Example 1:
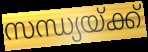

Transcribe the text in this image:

സന്ധ്യയ്ക്ക്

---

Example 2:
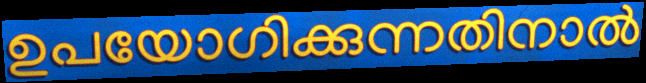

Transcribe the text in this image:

ഉപയോഗിക്കുന്നതിനാൽ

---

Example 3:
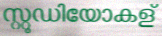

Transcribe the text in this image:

സ്റ്റുഡിയോകള്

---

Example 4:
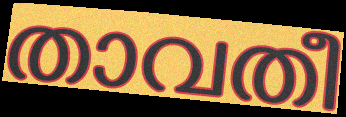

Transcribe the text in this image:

താവതീ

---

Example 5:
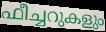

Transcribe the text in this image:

ഫീച്ചറുകളും